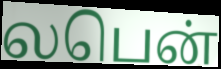
லபென்